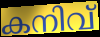
കനിവ്